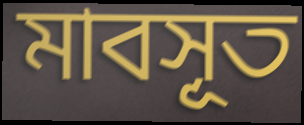
মাবসূত